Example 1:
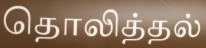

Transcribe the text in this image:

தொலித்தல்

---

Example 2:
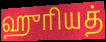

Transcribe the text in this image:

ஹுரியத்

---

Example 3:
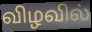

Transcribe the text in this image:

விழவில்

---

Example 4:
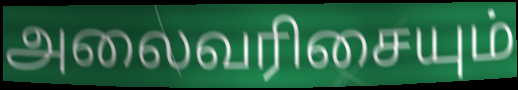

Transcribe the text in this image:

அலைவரிசையும்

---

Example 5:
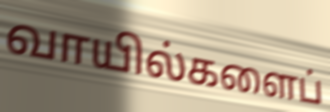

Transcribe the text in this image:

வாயில்களைப்